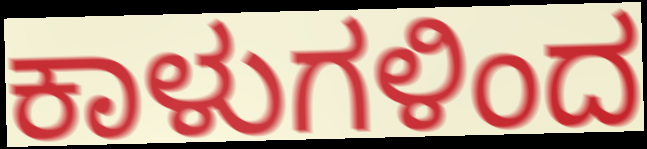
ಕಾಳುಗಳಿಂದ